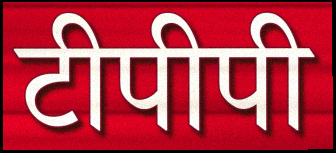
टीपीपी